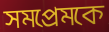
সমপ্রেমকে